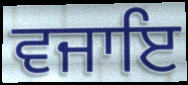
ਵਜਾਇ